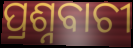
ପ୍ରଶ୍ନବାଚୀ